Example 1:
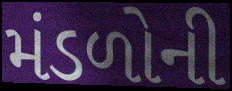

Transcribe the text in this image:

મંડળોની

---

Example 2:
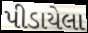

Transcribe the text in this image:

પીડાયેલા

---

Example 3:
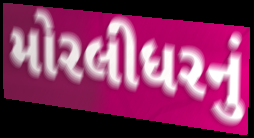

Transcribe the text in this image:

મોરલીધરનું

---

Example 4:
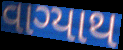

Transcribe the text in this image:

વાગ્યાથ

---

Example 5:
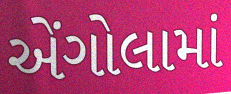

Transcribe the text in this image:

એંગોલામાં